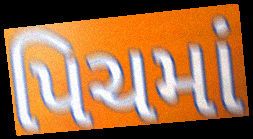
પિચમાં